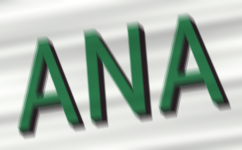
ANA